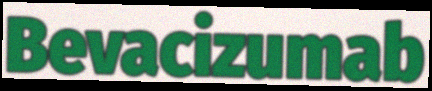
Bevacizumab